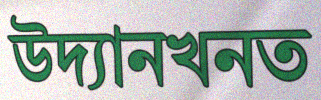
উদ্যানখনত